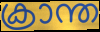
ക്രാന്ത